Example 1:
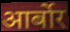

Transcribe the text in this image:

आर्बोर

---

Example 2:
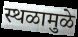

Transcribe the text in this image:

स्थळामुळे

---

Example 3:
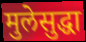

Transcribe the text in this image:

मुलेसुद्धा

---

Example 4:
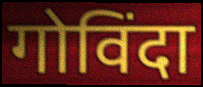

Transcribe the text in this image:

गोविंदा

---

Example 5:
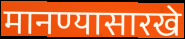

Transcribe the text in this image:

मानण्यासारखे